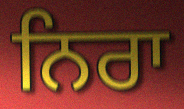
ਨਿਰਾ